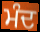
ਮੰਦ